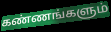
கண்ணங்களும்